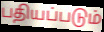
பதியப்படும்